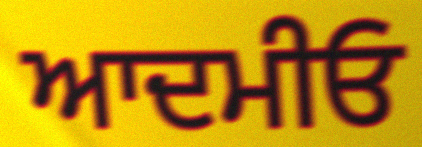
ਆਦਮੀਓ